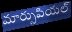
మార్సుపియల్